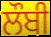
ਲੌਬੀ